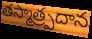
తస్మాత్ర్పదాన